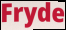
Fryde